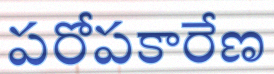
పరోపకారేణ